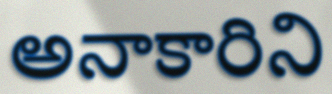
అనాకారిని